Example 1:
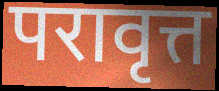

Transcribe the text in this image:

परावृत्त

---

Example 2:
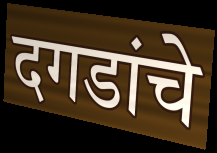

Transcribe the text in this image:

दगडांचे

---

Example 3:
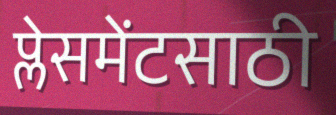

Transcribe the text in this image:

प्लेसमेंटसाठी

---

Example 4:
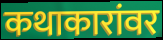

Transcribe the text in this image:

कथाकारांवर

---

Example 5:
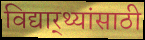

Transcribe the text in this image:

विद्यार्थ्यांसाठी